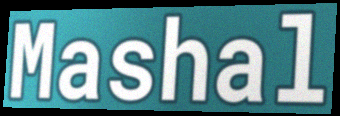
Mashal